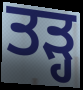
ਤੜ੍ਹ